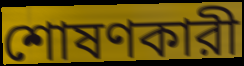
শোষণকারী